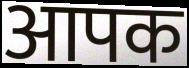
आपक